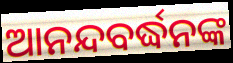
ଆନନ୍ଦବର୍ଦ୍ଧନଙ୍କ